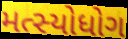
મત્સ્યોધોગ